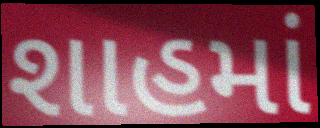
શાહમાં